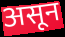
असून